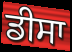
ਡੀਸਾ